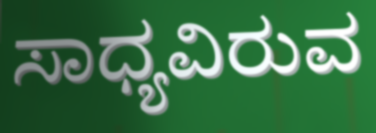
ಸಾಧ್ಯವಿರುವ